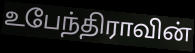
உபேந்திராவின்